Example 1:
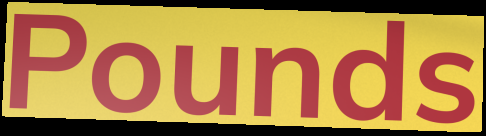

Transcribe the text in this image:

Pounds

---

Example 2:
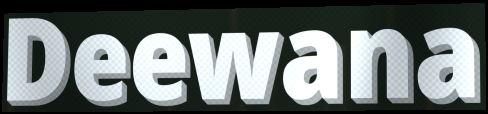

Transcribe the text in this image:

Deewana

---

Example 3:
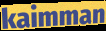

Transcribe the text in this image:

kaimman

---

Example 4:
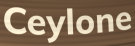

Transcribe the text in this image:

Ceylone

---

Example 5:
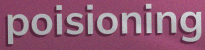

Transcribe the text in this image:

poisioning